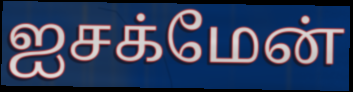
ஐசக்மேன்